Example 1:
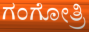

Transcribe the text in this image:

ಗಂಗೋತ್ರಿ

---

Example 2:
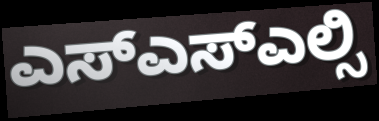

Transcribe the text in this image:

ಎಸ್ಎಸ್ಎಲ್ಸಿ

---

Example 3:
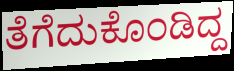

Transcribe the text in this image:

ತೆಗೆದುಕೊಂಡಿದ್ದ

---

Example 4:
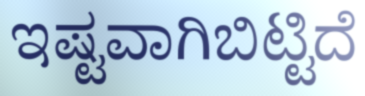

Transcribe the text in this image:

ಇಷ್ಟವಾಗಿಬಿಟ್ಟಿದೆ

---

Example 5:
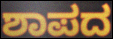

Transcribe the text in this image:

ಶಾಪದ